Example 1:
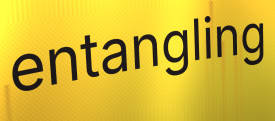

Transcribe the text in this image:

entangling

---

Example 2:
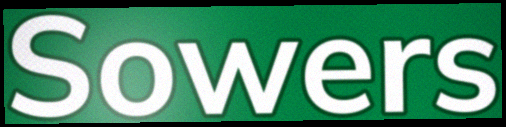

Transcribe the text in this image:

Sowers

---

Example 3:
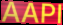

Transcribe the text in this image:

AAPI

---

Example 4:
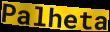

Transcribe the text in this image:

Palheta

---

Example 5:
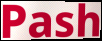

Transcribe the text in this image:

Pash